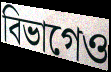
বিভাগেও